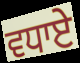
ਵਧਾਏ